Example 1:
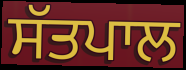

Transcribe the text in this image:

ਸੱਤਪਾਲ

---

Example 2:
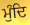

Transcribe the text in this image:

ਮੁੰਦਿ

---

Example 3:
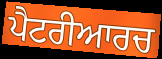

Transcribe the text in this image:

ਪੈਟਰੀਆਰਚ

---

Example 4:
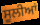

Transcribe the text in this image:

ਸੂਲੀਆਂ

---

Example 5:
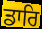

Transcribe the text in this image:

ਡਾਰਿ